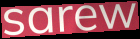
sarew